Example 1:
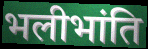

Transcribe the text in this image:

भलीभांति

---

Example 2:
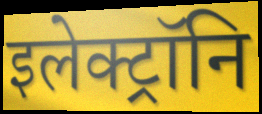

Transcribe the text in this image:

इलेक्ट्रॉनि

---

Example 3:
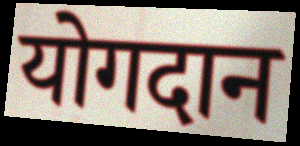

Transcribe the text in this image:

योगदान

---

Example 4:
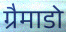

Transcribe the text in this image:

ग्रैमाडो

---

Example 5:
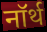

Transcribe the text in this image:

नॉर्थ